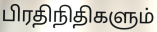
பிரதிநிதிகளும்